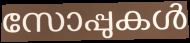
സോപ്പുകൾ